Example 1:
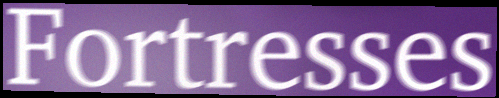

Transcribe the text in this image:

Fortresses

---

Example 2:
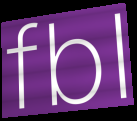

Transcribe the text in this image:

fbl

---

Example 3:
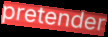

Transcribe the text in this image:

pretender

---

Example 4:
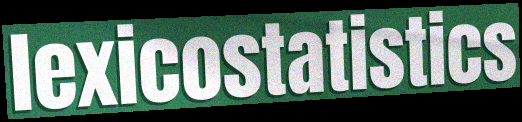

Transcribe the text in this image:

lexicostatistics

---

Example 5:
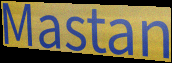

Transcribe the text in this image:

Mastan